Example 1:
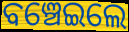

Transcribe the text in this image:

ବଞ୍ଚେଇଲେ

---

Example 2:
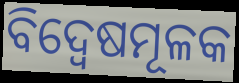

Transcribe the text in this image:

ବିଦ୍ୱେଷମୂଳକ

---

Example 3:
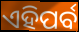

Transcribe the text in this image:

ଏହିପର୍ବ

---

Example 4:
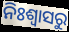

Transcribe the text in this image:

ନିଃଶ୍ବାସରୁ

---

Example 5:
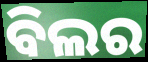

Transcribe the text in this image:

ବିଲର